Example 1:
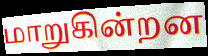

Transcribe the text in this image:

மாறுகின்றன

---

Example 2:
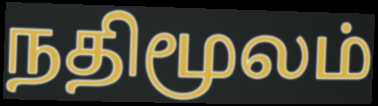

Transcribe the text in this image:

நதிமூலம்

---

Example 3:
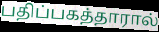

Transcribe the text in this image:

பதிப்பகத்தாரால்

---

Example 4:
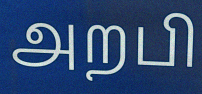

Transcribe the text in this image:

அறபி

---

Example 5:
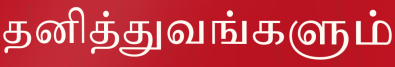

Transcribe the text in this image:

தனித்துவங்களும்